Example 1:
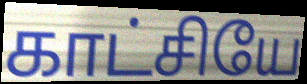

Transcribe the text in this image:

காட்சியே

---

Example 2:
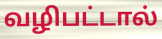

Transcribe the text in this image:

வழிபட்டால்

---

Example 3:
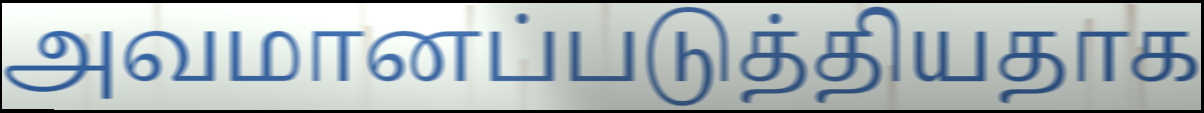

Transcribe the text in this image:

அவமானப்படுத்தியதாக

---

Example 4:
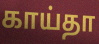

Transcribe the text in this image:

காய்தா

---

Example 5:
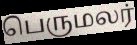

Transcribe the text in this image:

பெருமலர்